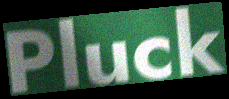
Pluck